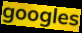
googles